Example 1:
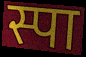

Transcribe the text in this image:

स्पा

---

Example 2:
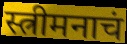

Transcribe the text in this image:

स्त्रीमनाचं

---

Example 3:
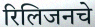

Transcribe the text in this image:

रिलिजनचे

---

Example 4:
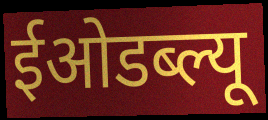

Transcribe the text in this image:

ईओडब्ल्यू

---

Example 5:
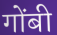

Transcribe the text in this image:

गोंबी